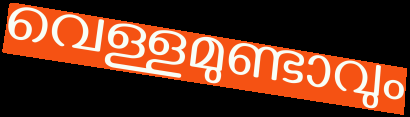
വെള്ളമുണ്ടാവും